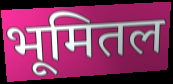
भूमितल